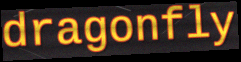
dragonfly